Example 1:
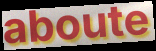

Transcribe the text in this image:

aboute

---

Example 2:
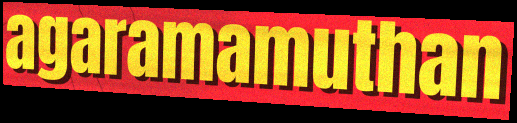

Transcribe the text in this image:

agaramamuthan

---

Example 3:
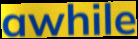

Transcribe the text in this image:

awhile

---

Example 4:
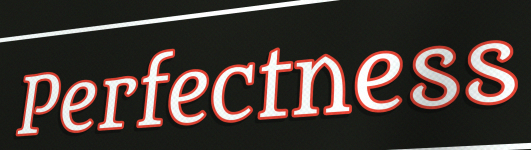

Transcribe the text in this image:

Perfectness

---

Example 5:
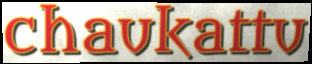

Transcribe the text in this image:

chaukattu